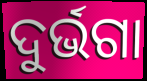
ଦୁର୍ଭଗା